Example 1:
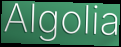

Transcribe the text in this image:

Algolia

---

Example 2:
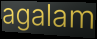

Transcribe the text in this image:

agalam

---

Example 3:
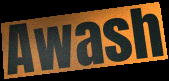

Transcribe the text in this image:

Awash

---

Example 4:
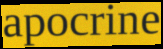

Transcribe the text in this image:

apocrine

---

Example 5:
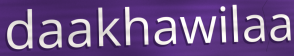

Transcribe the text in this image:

daakhawilaa